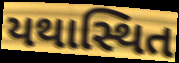
યથાસ્થિત